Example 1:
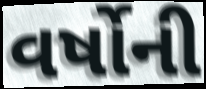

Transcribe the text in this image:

વર્ષોની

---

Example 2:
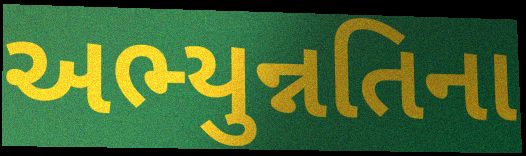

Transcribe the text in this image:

અભ્યુન્નતિના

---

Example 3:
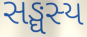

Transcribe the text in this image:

સઙ્ઘસ્ય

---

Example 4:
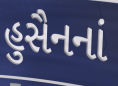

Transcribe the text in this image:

હુસૈનનાં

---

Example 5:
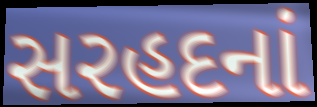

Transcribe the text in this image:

સરહદનાં